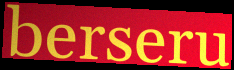
berseru